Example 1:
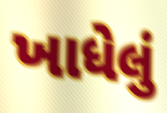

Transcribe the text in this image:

ખાધેલું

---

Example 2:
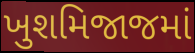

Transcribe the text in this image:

ખુશમિજાજમાં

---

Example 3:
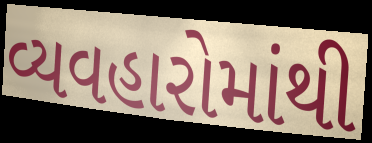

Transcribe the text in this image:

વ્યવહારોમાંથી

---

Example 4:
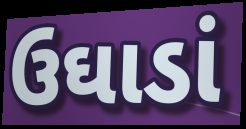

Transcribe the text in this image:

ઉઘાડાં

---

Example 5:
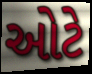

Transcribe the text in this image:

ઓટે